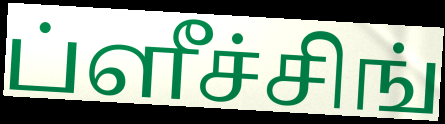
ப்ளீச்சிங்